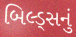
બિલ્ડ્સનું